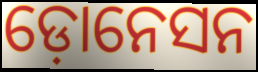
ଡ଼ୋନେସନ